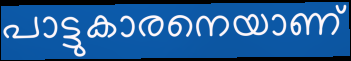
പാട്ടുകാരനെയാണ്